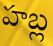
హబ్ల